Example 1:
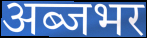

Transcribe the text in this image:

अब्जभर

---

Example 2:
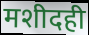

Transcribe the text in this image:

मशीदही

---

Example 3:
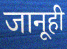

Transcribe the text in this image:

जानूही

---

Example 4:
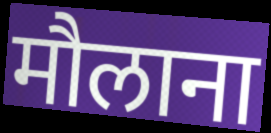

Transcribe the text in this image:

मौलाना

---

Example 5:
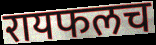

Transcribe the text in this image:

रायफलच